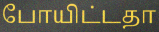
போயிட்டதா